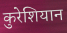
कुरेशियान